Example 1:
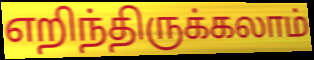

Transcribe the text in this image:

எறிந்திருக்கலாம்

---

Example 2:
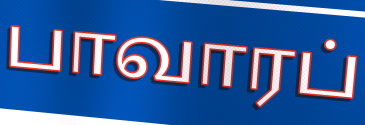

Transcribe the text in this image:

பாவாரப்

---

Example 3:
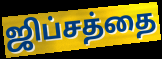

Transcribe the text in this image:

ஜிப்சத்தை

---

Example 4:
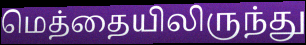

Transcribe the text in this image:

மெத்தையிலிருந்து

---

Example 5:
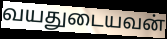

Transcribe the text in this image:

வயதுடையவன்